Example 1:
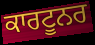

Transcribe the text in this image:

ਕਾਰਟੂਨਰ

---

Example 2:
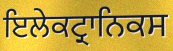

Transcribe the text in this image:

ਇਲੇਕਟ੍ਰਾਨਿਕਸ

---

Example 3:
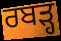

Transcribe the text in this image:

ਰਬੜ੍ਹ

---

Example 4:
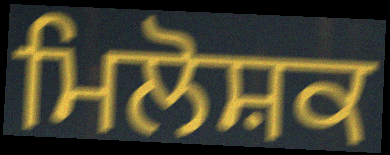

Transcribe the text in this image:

ਮਿਲੋਸ਼ਕ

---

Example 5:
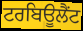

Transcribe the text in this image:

ਟਰਬਿਊਲੈਂਟ